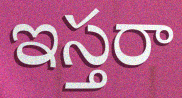
ఇస్తరా